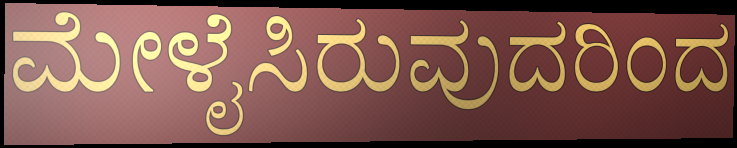
ಮೇಳೈಸಿರುವುದರಿಂದ